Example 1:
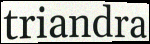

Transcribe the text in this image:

triandra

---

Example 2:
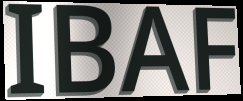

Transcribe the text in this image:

IBAF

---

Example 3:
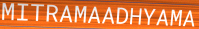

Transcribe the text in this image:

MITRAMAADHYAMA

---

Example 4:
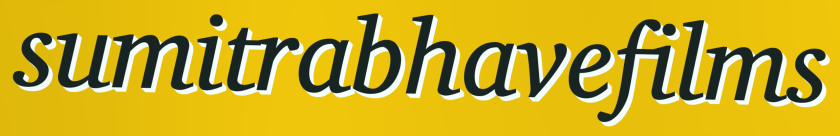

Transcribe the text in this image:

sumitrabhavefilms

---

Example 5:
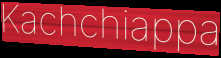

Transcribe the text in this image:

Kachchiappa